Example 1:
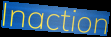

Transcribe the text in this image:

Inaction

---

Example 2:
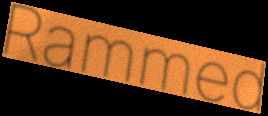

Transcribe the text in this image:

Rammed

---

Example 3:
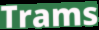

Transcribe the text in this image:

Trams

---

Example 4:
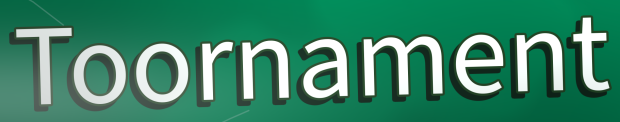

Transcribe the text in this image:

Toornament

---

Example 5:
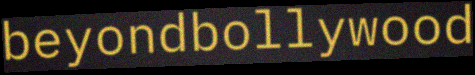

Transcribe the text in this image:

beyondbollywood